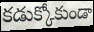
కడుక్కోకుండా